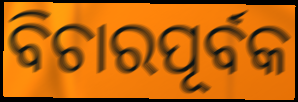
ବିଚାରପୂର୍ବକ